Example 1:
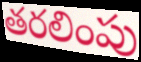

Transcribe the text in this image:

తరలింపు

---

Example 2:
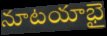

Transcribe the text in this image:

నూటయాభై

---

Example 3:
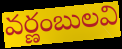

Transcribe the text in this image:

వర్ణంబులవి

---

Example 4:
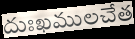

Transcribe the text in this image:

దుఃఖములచేత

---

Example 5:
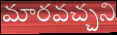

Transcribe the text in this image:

మారవచ్చని